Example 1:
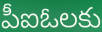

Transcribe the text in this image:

పీఐఓలకు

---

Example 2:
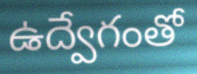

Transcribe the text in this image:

ఉద్వేగంతో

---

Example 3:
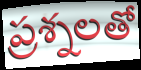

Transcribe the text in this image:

ప్రశ్నలతో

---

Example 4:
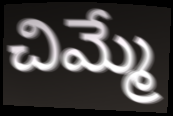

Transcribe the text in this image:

చిమ్మే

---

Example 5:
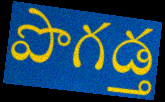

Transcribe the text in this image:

పొగడ్త